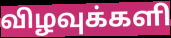
விழவுக்களி